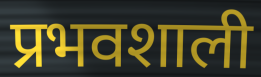
प्रभवशाली